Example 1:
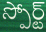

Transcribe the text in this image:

స్పోర్ట్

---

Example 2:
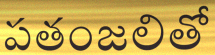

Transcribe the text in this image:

పతంజలితో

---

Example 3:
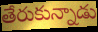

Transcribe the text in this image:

తేరుకున్నాడు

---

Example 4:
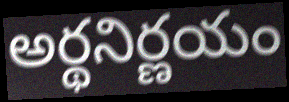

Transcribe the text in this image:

అర్థనిర్ణయం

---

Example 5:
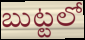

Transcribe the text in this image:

బుట్టలో